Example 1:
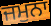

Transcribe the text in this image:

ਜਮੁਨਾ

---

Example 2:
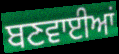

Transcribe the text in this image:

ਬਣਵਾਈਆਂ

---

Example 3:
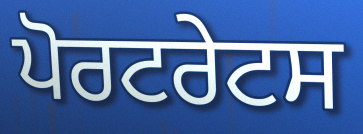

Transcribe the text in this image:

ਪੋਰਟਰੇਟਸ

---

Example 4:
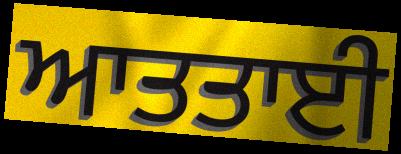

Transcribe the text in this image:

ਆਤਤਾਈ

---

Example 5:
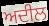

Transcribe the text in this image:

ਅਦੀਲ